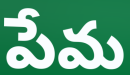
పేమ